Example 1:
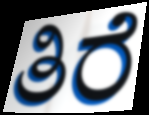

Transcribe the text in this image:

ತಿರೆ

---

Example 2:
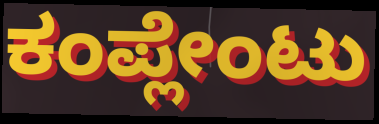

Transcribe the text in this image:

ಕಂಪ್ಲೇಂಟು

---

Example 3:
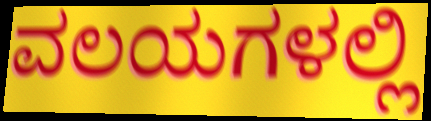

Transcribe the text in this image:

ವಲಯಗಳಲ್ಲಿ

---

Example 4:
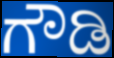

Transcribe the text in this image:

ಗೌಡಿ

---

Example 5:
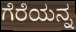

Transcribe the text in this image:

ಗೆರೆಯನ್ನ